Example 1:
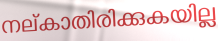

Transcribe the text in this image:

നല്‌കാതിരിക്കുകയില്ല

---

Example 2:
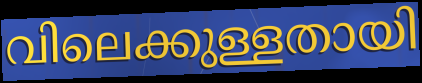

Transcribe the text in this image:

വിലെക്കുള്ളതായി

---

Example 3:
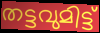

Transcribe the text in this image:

തട്ടവുമിട്ട്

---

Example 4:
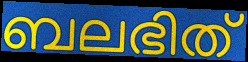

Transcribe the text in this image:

ബലഭിത്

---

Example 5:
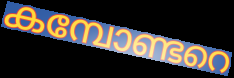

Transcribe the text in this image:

കമ്പോണ്ടറെ